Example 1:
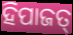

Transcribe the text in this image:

ହିପାଜତ୍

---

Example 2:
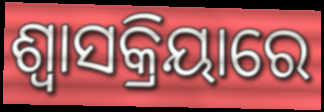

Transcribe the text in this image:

ଶ୍ୱାସକ୍ରିୟାରେ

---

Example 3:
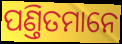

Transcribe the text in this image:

ପଣ୍ତିତମାନେ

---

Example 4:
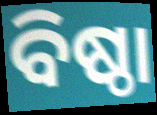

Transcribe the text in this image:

ବିଷ୍ଠା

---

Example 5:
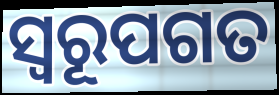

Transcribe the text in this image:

ସ୍ଵରୂପଗତ